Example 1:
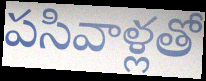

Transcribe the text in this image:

పసివాళ్లతో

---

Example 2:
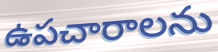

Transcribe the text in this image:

ఉపచారాలను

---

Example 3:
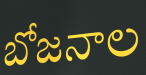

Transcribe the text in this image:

బోజనాల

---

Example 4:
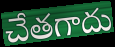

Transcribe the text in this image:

చేతగాదు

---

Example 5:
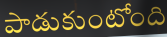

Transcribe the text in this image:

పాడుకుంటోంది